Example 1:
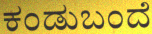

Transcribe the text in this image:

ಕಂಡುಬಂದೆ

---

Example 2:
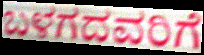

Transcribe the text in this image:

ಬಳಗದವರಿಗೆ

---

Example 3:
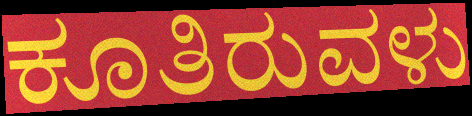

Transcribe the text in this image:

ಕೂತಿರುವಳು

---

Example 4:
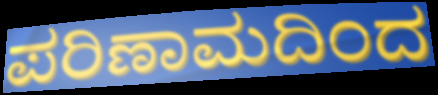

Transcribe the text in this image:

ಪರಿಣಾಮದಿಂದ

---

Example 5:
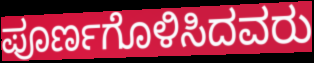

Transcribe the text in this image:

ಪೂರ್ಣಗೊಳಿಸಿದವರು